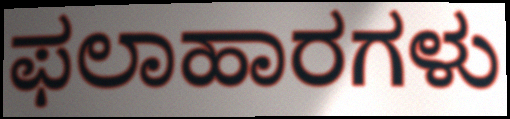
ಫಲಾಹಾರಗಳು